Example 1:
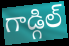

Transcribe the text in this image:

గాడ్గిల్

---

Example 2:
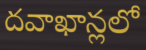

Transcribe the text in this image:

దవాఖాన్లలో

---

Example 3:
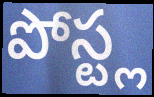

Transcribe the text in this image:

పోస్ట్ల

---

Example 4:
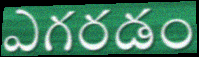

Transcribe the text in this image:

ఎగరడం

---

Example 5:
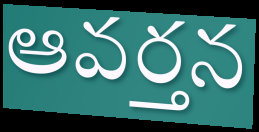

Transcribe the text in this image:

ఆవర్తన